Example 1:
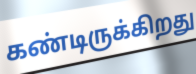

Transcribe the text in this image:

கண்டிருக்கிறது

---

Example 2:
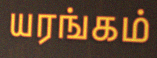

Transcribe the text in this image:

யரங்கம்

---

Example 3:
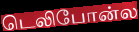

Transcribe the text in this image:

டெலிபோன்ல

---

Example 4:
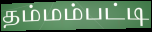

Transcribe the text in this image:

தம்மம்பட்டி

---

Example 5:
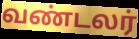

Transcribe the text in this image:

வண்டலர்